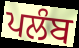
ਪਲੰਬ